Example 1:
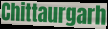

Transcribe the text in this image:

Chittaurgarh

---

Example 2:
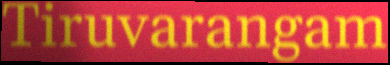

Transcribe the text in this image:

Tiruvarangam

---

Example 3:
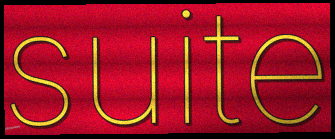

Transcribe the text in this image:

suite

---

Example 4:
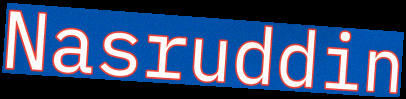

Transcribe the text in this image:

Nasruddin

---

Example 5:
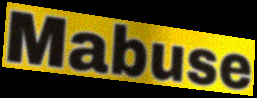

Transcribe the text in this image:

Mabuse